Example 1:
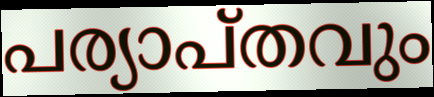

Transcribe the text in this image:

പര്യാപ്തവും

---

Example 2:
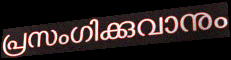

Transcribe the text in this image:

പ്രസംഗിക്കുവാനും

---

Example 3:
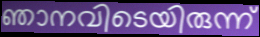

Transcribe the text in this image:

ഞാനവിടെയിരുന്ന്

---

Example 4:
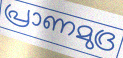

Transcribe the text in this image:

പ്രാണമുദ്ര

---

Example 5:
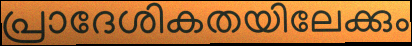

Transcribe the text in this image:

പ്രാദേശികതയിലേക്കും